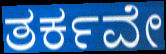
ತರ್ಕವೇ